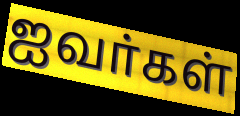
ஐவர்கள்